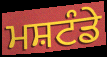
ਮਸ਼ਟੰਡੇ